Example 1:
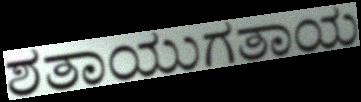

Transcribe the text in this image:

ಶತಾಯುಗತಾಯ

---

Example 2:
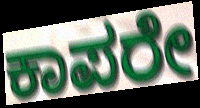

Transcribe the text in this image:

ಕಾಪರೇ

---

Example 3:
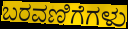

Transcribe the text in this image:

ಬರವಣಿಗೆಗಳು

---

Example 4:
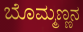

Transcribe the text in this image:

ಬೊಮ್ಮಣ್ಣನ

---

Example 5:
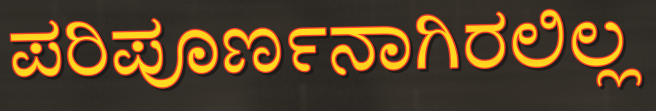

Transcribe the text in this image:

ಪರಿಪೂರ್ಣನಾಗಿರಲಿಲ್ಲ